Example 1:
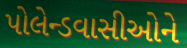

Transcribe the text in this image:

પોલેન્ડવાસીઓને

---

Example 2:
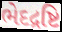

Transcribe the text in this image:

ભેદદ્રષ્ટિ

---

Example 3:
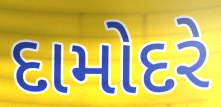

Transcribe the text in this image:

દામોદરે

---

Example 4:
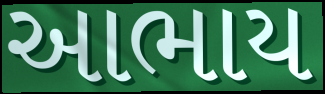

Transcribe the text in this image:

આભાય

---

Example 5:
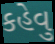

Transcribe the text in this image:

કહેવુ